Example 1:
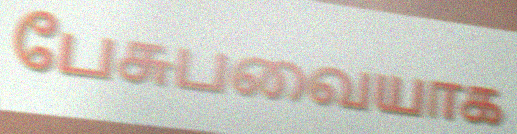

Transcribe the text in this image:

பேசுபவையாக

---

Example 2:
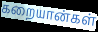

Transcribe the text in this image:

கறையான்கள்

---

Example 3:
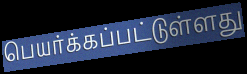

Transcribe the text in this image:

பெயர்க்கப்பட்டுள்ளது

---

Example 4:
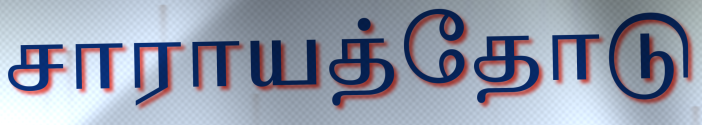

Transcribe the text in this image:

சாராயத்தோடு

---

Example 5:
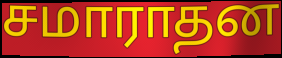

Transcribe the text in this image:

சமாராதன